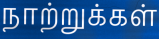
நாற்றுக்கள்